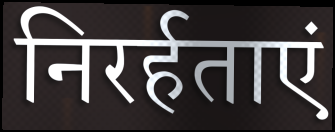
निरर्हताएं